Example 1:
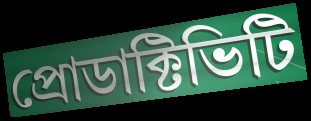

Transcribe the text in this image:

প্রোডাক্টিভিটি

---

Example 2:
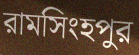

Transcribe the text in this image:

রামসিংহপুর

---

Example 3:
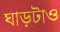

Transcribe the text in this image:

ঘাড়টাও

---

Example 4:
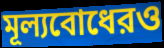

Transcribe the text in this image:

মূল্যবোধেরও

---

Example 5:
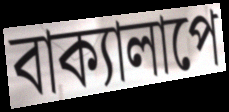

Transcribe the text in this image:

বাক্যালাপে